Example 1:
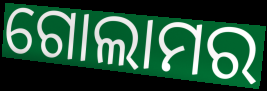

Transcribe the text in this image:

ଗୋଲାମର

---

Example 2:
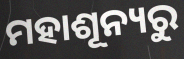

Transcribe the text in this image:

ମହାଶୂନ୍ୟରୁ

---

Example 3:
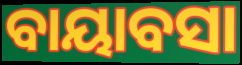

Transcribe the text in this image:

ବାୟାବସା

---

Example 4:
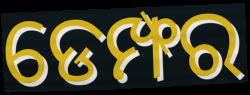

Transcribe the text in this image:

ଡେମ୍ଫର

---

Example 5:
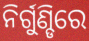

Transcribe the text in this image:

ନିର୍ଗୁଣ୍ଡିରେ